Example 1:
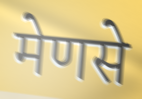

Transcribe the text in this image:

मेणसे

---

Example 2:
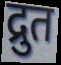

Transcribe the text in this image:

द्रुत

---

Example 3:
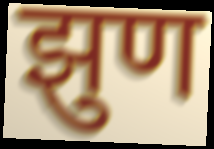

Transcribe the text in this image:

झुण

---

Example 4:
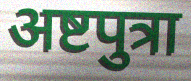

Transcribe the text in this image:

अष्टपुत्रा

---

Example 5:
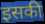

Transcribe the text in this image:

इसकी